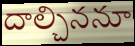
దాల్చిననూ